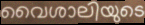
വൈശാലിയുടെ